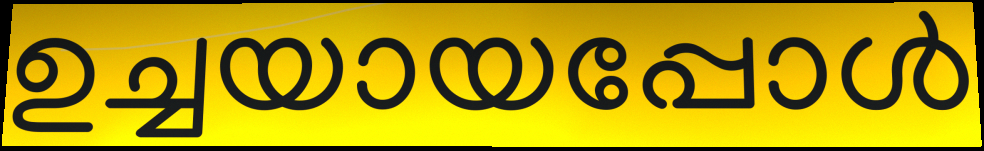
ഉച്ചയായപ്പോൾ